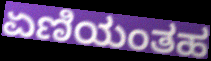
ಏಣಿಯಂತಹ